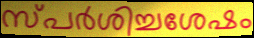
സ്പർശിച്ചശേഷം